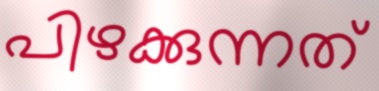
പിഴക്കുന്നത്